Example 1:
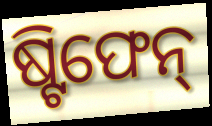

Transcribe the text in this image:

ଷ୍ଟିଫେନ୍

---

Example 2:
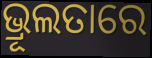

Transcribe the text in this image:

ଭ୍ରୂଲତାରେ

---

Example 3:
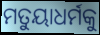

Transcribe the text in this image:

ମତୁୟାଧର୍ମକୁ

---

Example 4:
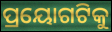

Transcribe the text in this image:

ପ୍ରୟୋଗଟିକୁ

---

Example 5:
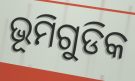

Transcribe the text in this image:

ଭୂମିଗୁଡିକ